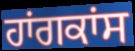
ਹਾਂਗਕਾਂਸ